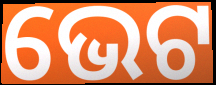
ଭେଟ